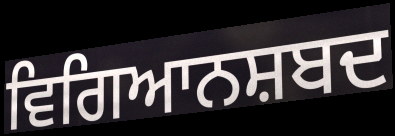
ਵਿਗਿਆਨਸ਼ਬਦ